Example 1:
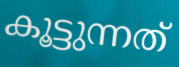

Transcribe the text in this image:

കൂട്ടുന്നത്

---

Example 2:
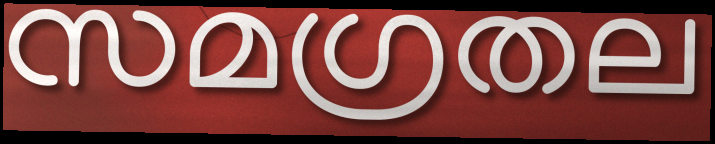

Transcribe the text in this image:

സമഗ്രതല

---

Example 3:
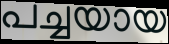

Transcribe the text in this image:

പച്ചയായ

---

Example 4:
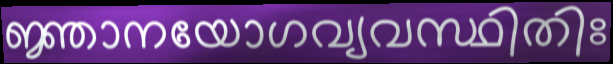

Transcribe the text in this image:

ജ്ഞാനയോഗവ്യവസ്ഥിതിഃ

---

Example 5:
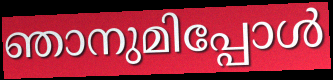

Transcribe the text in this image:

ഞാനുമിപ്പോൾ